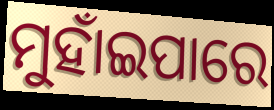
ମୁହାଁଇପାରେ